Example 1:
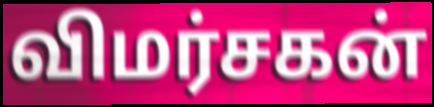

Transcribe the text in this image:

விமர்சகன்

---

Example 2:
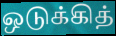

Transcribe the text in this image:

ஒடுக்கித்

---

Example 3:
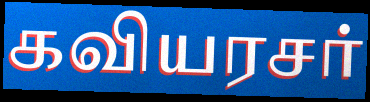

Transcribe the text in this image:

கவியரசர்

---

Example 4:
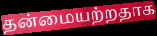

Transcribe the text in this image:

தன்மையற்றதாக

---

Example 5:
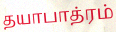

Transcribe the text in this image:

தயாபாத்ரம்